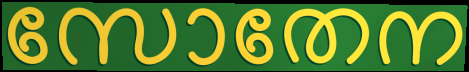
സോതേന